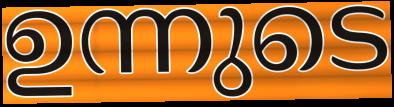
ഉന്നുടെ